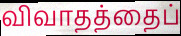
விவாதத்தைப்